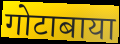
गोटाबाया